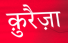
क़ुरैज़ा